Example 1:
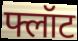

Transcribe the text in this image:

फ्लॉट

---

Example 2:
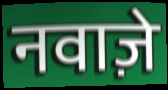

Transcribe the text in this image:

नवाज़े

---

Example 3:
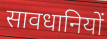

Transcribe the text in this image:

सावधानियों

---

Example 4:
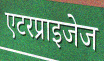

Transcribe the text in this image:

एटरप्राइजेज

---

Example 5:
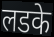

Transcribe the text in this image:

लडके